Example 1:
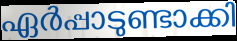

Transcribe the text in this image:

ഏർപ്പാടുണ്ടാക്കി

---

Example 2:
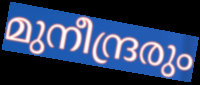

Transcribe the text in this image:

മുനീന്ദ്രരും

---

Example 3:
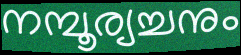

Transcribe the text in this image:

നമ്പൂര്യച്ചനും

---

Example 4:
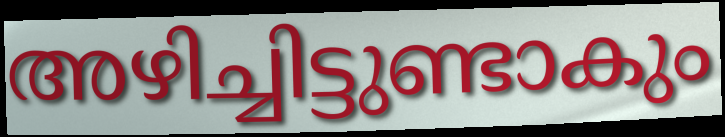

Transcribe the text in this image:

അഴിച്ചിട്ടുണ്ടാകും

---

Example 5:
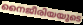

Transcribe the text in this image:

നൈജീരിയയുടെ